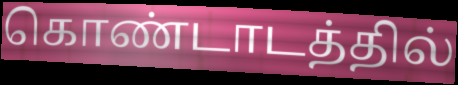
கொண்டாடத்தில்